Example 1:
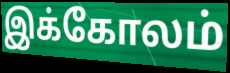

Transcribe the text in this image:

இக்கோலம்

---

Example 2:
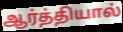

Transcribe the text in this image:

ஆர்த்தியால்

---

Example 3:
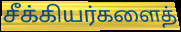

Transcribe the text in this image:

சீக்கியர்களைத்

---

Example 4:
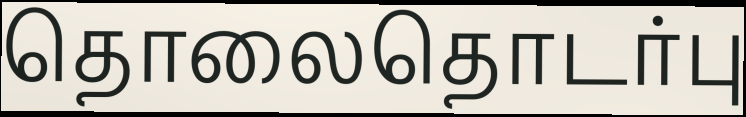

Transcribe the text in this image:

தொலைதொடர்பு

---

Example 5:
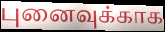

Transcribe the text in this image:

புனைவுக்காக